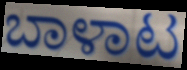
ಬಾಳಾಟ